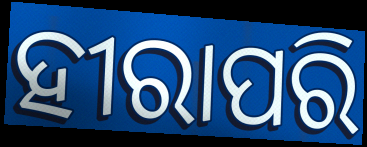
ହୀରାପରି